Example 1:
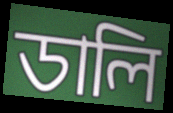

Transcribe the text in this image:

ডালি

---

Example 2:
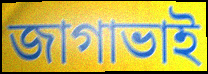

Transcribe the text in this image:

জাগাভাই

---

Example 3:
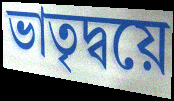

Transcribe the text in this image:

ভাতৃদ্বয়ে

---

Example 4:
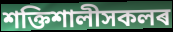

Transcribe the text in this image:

শক্তিশালীসকলৰ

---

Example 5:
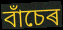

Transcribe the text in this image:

বাঁচেৰ